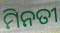
ମିନତୀ